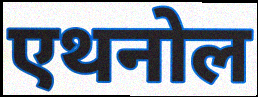
एथनोल